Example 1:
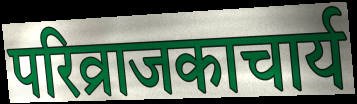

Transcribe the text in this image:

परिव्राजकाचार्य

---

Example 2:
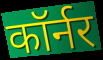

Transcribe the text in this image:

कॉर्नर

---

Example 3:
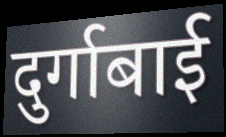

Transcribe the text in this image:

दुर्गाबाई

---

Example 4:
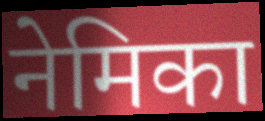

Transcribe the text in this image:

नेमिका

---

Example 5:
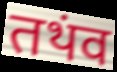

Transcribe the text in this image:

तथंव